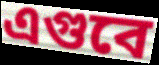
এগুবে